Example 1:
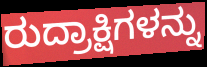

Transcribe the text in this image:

ರುದ್ರಾಕ್ಷಿಗಳನ್ನು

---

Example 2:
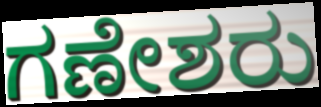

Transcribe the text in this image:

ಗಣೇಶರು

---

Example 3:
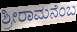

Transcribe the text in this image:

ಶ್ರೀರಾಮನೆಂಬ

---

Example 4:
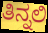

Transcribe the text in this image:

ತಿನ್ನಲಿ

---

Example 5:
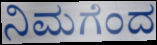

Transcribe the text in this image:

ನಿಮಗೆಂದ